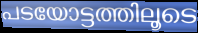
പടയോട്ടത്തിലൂടെ